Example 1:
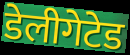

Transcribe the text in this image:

डेलीगेटेड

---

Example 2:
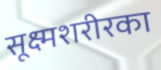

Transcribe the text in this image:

सूक्ष्मशरीरका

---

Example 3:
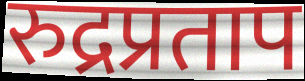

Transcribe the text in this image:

रुद्रप्रताप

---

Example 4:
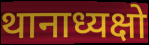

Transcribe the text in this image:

थानाध्यक्षो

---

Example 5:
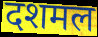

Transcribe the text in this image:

दशमल